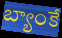
బ్యాంకే